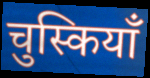
चुस्कियाँ